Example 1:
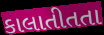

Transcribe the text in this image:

કાલાતીતતા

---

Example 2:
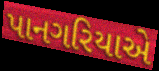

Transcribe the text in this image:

પાનગરિયાએ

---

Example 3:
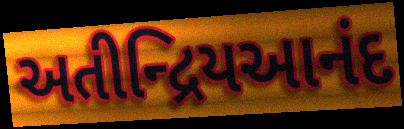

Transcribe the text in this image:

અતીન્દ્રિયઆનંદ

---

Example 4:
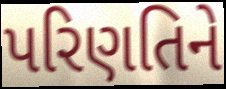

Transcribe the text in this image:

પરિણતિને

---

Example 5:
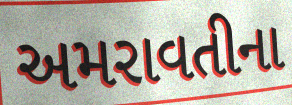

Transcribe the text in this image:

અમરાવતીના